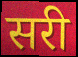
सरी